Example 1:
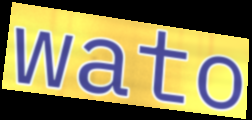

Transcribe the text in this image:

wato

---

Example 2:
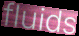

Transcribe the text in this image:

fluids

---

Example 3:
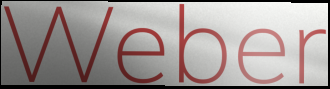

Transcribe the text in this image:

Weber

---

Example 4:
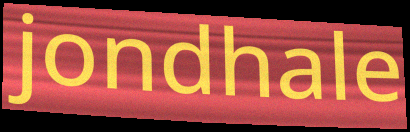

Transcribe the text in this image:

jondhale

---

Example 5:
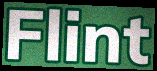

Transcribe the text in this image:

Flint